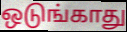
ஒடுங்காது